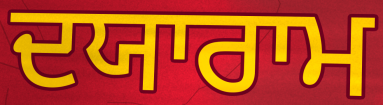
ਦਯਾਰਾਮ